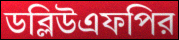
ডব্লিউএফপির